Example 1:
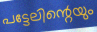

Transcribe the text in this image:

പട്ടേലിന്റെയും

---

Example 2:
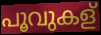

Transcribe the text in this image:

പൂവുകള്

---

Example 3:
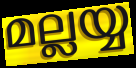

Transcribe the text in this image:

മല്ലയ്യ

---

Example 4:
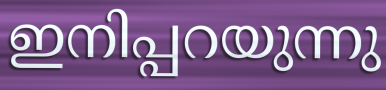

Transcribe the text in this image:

ഇനിപ്പറയുന്നു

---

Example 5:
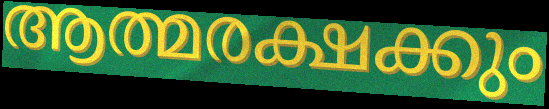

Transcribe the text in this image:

ആത്മരക്ഷക്കും